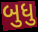
બુધુ